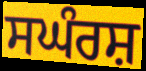
ਸਘੰਰਸ਼